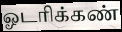
ஓடரிக்கண்